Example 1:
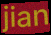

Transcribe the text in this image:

jian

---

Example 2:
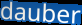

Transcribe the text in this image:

dauber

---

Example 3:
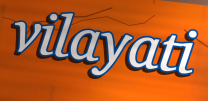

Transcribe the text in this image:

vilayati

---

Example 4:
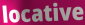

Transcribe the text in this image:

locative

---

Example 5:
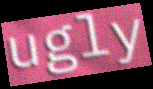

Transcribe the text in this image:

ugly